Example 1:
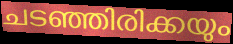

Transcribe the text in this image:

ചടഞ്ഞിരിക്കയും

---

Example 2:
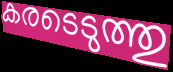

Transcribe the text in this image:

കരടെടുത്തു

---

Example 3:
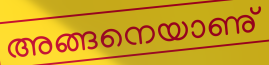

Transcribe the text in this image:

അങ്ങനെയാണു്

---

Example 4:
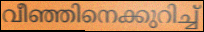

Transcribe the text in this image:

വീഞ്ഞിനെക്കുറിച്ച്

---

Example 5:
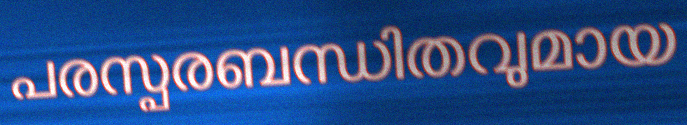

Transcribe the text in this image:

പരസ്പരബന്ധിതവുമായ